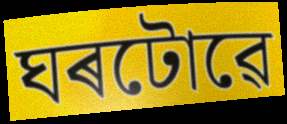
ঘৰটোৱে